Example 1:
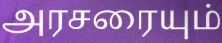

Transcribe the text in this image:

அரசரையும்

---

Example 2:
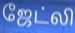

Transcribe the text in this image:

ஜேட்லி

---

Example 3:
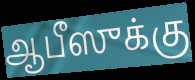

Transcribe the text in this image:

ஆபீஸுக்கு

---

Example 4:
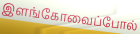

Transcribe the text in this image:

இளங்கோவைப்போல்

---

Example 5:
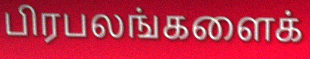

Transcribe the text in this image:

பிரபலங்களைக்